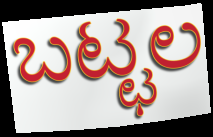
ಬಟ್ಟಲ